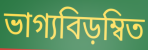
ভাগ্যবিড়ম্বিত